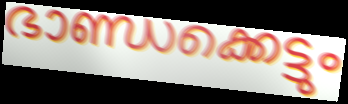
ഭാണ്ഡക്കെട്ടും